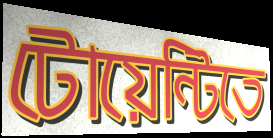
টোয়েন্টিতে